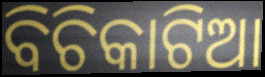
ବିଚିକାଟିଆ